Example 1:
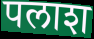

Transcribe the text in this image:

पलाश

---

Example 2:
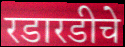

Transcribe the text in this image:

रडारडीचे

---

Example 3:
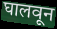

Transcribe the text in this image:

घालवून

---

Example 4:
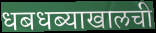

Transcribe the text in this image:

धबधब्याखालची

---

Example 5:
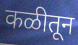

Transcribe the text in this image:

कळीतून